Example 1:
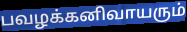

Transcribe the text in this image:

பவழக்கனிவாயரும்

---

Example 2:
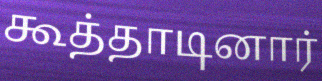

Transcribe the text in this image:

கூத்தாடினார்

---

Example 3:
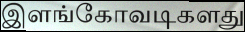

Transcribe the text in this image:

இளங்கோவடிகளது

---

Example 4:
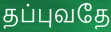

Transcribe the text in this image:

தப்புவதே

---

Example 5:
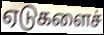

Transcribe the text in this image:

ஏடுகளைச்